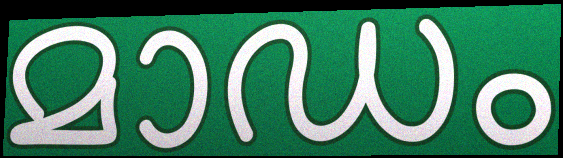
മാഡം